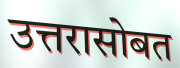
उत्तरासोबत